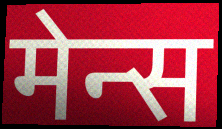
मेन्स